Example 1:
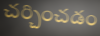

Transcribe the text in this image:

చర్చించడం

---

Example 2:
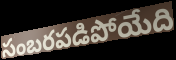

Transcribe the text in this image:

సంబరపడిపోయేది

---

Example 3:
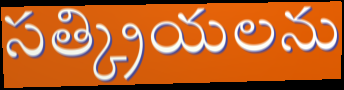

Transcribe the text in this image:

సత్క్రియలను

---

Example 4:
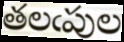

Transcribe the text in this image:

తలఁపుల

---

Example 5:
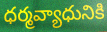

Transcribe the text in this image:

ధర్మవ్యాధునికి